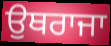
ਉਥਰਾਜਾ